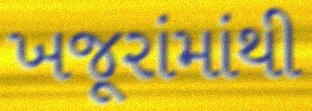
ખજૂરાંમાંથી